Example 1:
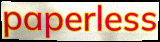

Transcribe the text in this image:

paperless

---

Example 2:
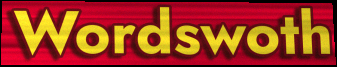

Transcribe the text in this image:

Wordswoth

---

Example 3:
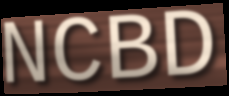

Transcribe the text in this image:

NCBD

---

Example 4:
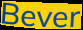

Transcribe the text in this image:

Bever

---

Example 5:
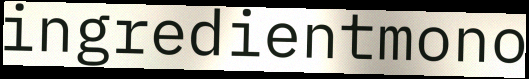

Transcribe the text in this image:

ingredientmono